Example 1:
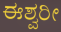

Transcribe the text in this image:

ಈಶ್ವರೀ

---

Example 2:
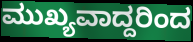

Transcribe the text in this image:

ಮುಖ್ಯವಾದ್ದರಿಂದ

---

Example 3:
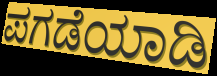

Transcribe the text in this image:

ಪಗಡೆಯಾಡಿ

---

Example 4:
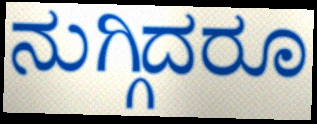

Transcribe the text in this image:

ನುಗ್ಗಿದರೂ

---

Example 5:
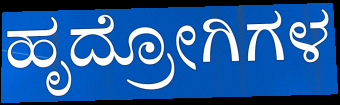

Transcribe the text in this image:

ಹೃದ್ರೋಗಿಗಳ